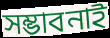
সম্ভাবনাই